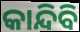
କାନ୍ଦିବି